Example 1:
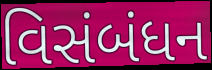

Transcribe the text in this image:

વિસંબંધન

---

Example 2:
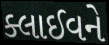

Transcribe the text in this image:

ક્લાઈવને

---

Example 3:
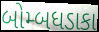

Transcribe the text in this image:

બોમ્બધડાકા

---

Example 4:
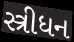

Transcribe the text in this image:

સ્ત્રીધન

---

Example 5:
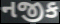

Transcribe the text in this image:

નજીક